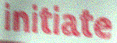
initiate